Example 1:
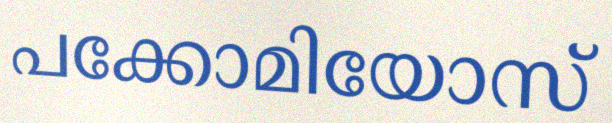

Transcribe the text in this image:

പക്കോമിയോസ്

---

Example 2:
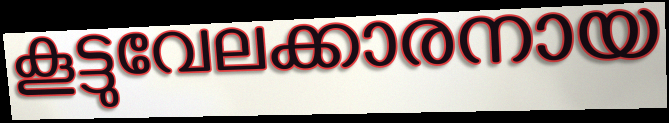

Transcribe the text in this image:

കൂട്ടുവേലക്കാരനായ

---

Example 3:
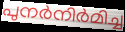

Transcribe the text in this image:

പുനർനിർമിച്ച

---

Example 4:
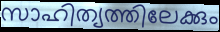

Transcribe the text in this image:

സാഹിത്യത്തിലേക്കും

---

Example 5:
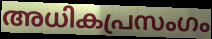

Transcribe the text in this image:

അധികപ്രസംഗം